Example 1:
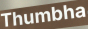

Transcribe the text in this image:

Thumbha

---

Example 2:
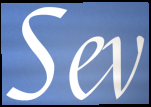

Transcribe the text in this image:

Sev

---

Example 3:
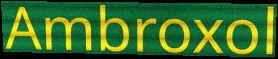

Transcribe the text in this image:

Ambroxol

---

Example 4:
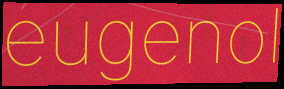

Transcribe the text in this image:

eugenol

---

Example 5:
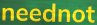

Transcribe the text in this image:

neednot